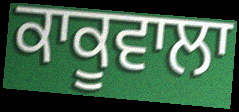
ਕਾਕੂਵਾਲਾ